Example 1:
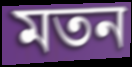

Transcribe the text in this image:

মতন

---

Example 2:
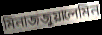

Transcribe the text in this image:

মিনাজজুয়ালেমিন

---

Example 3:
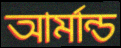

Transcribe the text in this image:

আর্মান্ড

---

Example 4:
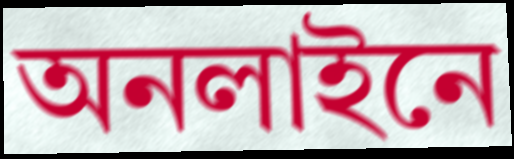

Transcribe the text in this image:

অনলাইনে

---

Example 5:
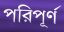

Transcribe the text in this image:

পরিপূর্ণ